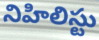
నిహిలిస్టు